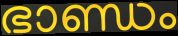
ഭാണ്ഡം